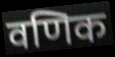
वणिक